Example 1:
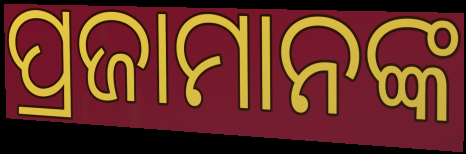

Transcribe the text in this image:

ପ୍ରଜାମାନଙ୍କ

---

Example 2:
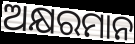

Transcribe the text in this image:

ଅକ୍ଷରମାନ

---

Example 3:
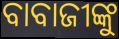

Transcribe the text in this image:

ବାବାଜୀଙ୍କୁ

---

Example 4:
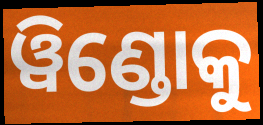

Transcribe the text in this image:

ୱିଣ୍ଡୋକୁ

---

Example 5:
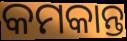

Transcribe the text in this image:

କମକାନ୍ତ